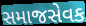
સમાજસેવક